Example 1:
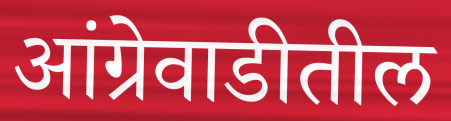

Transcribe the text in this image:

आंग्रेवाडीतील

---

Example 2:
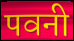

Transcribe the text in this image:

पवनी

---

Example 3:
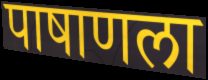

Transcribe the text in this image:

पाषाणला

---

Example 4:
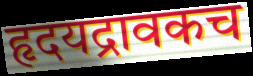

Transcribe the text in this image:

हृदयद्रावकच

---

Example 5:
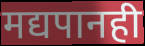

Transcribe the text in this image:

मद्यपानही